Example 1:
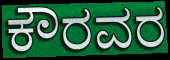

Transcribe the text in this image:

ಕೌರವರ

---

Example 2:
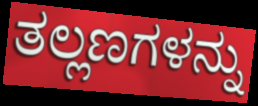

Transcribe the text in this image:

ತಲ್ಲಣಗಳನ್ನು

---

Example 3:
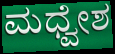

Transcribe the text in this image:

ಮಧ್ವೇಶ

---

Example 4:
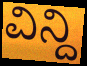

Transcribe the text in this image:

ವಿನ್ದಿ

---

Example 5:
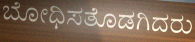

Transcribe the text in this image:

ಬೋಧಿಸತೊಡಗಿದರು